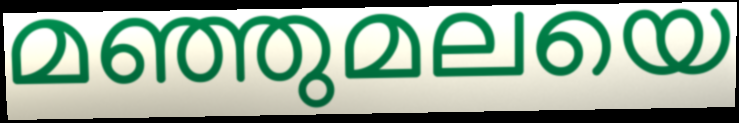
മഞ്ഞുമലയെ